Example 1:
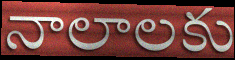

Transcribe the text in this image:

నాలాలకు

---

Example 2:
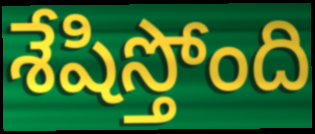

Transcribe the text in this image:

శేషిస్తోంది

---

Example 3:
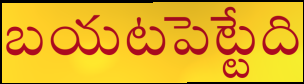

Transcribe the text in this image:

బయటపెట్టేది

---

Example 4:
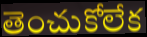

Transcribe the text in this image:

తెంచుకోలేక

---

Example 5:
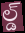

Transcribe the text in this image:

ల్డ్